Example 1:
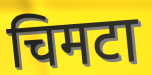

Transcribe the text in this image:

चिमटा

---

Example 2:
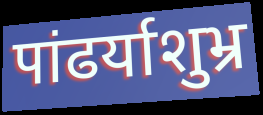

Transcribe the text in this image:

पांढर्याशुभ्र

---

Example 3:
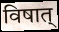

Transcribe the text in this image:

विषात्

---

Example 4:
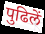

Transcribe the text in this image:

पुढिलें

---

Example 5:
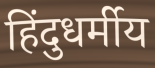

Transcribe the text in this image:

हिंदुधर्मीय